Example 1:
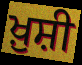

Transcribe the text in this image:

ਖ਼ੁਸ਼ੀ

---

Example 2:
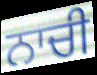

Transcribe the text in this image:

ਨਾਚੀ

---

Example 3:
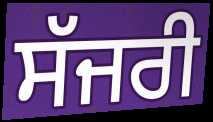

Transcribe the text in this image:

ਸੱਜਰੀ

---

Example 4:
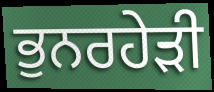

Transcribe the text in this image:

ਭੁਨਰਹੇੜੀ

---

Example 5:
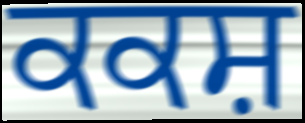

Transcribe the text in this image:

ਕਕਸ਼